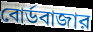
বোর্ডবাজার